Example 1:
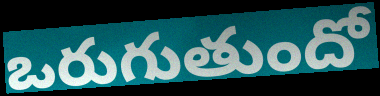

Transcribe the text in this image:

ఒరుగుతుందో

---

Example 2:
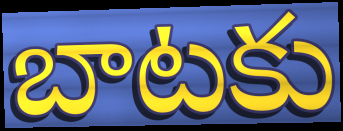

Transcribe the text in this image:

బాటకు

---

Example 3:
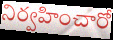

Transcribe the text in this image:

నిర్వహించారో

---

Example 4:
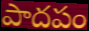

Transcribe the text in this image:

పాదపం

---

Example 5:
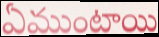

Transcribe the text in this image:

ఏముంటాయి